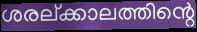
ശരല്ക്കാലത്തിന്റെ